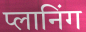
प्‍लानिंग